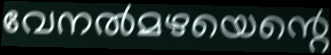
വേനൽമഴയെന്റെ